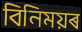
বিনিময়ৰ